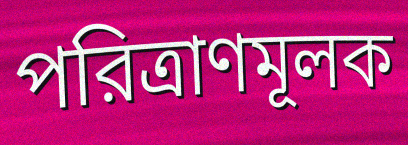
পরিত্রাণমূলক